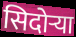
सिदोर्‍या